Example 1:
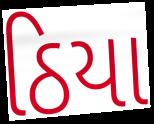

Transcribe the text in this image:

ઠિયા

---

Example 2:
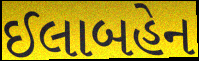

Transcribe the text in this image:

ઈલાબહેન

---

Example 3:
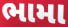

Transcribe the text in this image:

ભામા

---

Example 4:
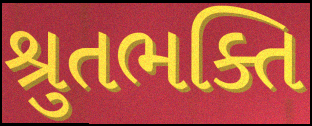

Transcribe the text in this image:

શ્રુતભક્તિ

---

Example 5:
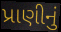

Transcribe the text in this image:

પ્રાણીનું